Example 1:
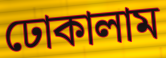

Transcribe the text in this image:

ঢোকালাম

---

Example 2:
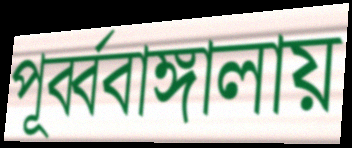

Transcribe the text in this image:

পূর্ব্ববাঙ্গালায়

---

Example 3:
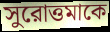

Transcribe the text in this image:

সুরোত্তমাকে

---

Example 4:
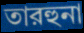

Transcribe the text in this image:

তারহুনা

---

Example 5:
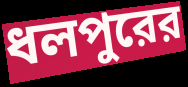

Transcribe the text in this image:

ধলপুরের